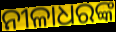
ନୀଳାଧରଙ୍କ